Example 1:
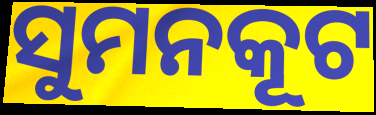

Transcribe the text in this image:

ସୁମନକୂଟ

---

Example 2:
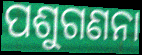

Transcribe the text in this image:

ପଶୁଗଣନା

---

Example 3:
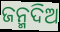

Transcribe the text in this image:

ଜନ୍ମଦିଅ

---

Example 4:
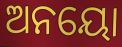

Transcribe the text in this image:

ଅନୟୋ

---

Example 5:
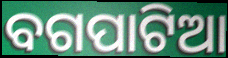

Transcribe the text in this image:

ବଗପାଟିଆ